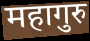
महागुरु